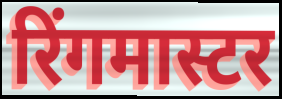
रिंगमास्टर